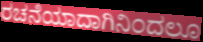
ರಚನೆಯಾದಾಗಿನಿಂದಲೂ